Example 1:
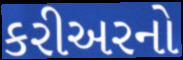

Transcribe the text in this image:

કરીઅરનો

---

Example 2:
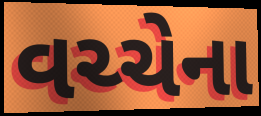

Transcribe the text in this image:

વચ્ચેના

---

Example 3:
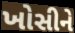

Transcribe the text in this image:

ખોસીને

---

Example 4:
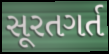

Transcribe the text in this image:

સૂરતગર્ત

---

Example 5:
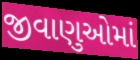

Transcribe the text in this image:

જીવાણુઓમાં